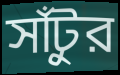
সাঁটুর